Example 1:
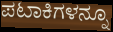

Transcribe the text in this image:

ಪಟಾಕಿಗಳನ್ನೂ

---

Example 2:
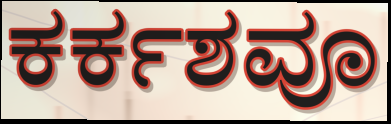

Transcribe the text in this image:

ಕರ್ಕಶವೂ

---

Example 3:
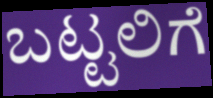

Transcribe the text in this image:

ಬಟ್ಟಲಿಗೆ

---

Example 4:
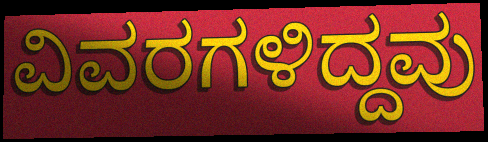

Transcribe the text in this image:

ವಿವರಗಳಿದ್ದವು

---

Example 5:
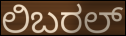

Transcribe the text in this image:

ಲಿಬರಲ್